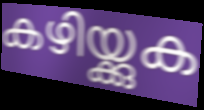
കഴിയ്ക്കുക